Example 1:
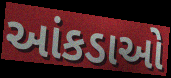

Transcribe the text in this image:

આંકડાઓ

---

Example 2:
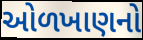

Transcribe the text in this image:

ઓળખાણનો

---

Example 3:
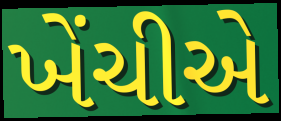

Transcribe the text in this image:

ખેંચીએ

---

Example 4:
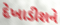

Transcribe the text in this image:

દેખાડીશને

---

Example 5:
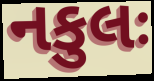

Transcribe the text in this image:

નકુલઃ